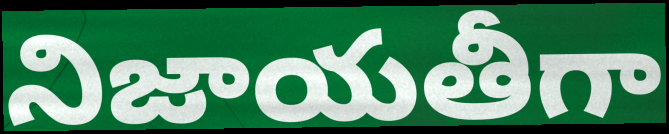
నిజాయతీగా